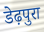
डेढ़पुरा